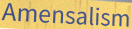
Amensalism